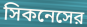
সিকনেসের